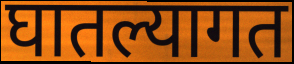
घातल्यागत